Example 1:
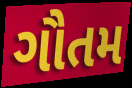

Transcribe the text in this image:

ગૌતમ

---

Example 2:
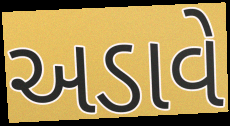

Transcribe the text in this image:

અડાવે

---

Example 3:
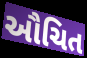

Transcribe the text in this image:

ઔચિત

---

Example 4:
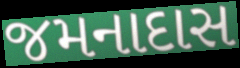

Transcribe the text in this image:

જમનાદાસ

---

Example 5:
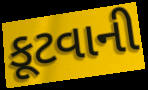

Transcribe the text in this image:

કૂટવાની